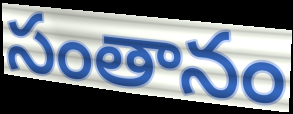
సంతానం